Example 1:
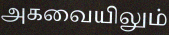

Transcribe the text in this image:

அகவையிலும்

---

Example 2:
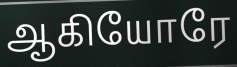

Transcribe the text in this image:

ஆகியோரே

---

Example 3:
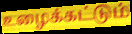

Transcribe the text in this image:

உழைக்கட்டும்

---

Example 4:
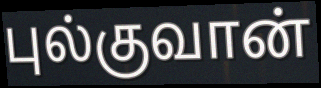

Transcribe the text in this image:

புல்குவான்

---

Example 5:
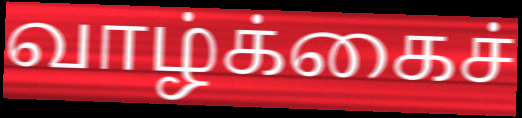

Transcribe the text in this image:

வாழ்க்கைச்